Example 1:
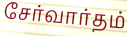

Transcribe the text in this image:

சேர்வார்தம்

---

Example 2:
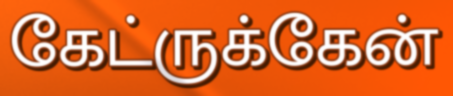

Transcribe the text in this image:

கேட்ருக்கேன்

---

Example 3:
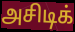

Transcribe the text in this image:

அசிடிக்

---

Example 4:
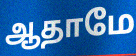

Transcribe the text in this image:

ஆதாமே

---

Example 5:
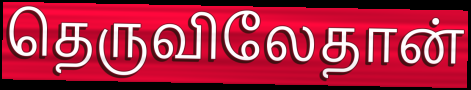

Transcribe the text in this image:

தெருவிலேதான்